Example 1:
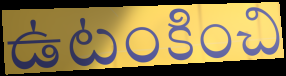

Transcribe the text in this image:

ఉటంకించి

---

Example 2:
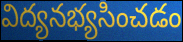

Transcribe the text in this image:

విద్యనభ్యసించడం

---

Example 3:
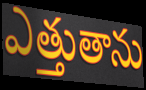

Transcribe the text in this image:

ఎత్తుతాను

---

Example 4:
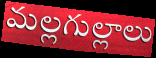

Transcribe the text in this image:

మల్లగుల్లాలు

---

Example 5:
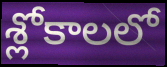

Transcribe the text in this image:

శ్లోకాలలో